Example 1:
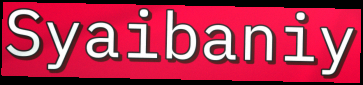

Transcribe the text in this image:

Syaibaniy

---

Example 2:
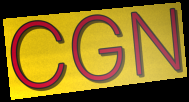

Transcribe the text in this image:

CGN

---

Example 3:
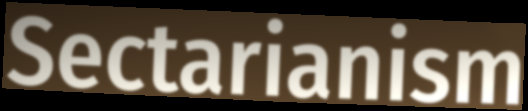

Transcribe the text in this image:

Sectarianism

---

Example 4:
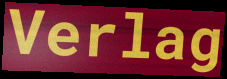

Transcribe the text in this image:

Verlag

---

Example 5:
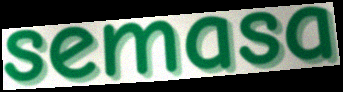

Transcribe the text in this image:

semasa